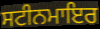
ਸਟੀਨਮਾਇਰ